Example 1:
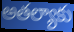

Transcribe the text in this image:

అతల్యాకు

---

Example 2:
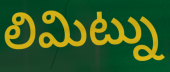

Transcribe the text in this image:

లిమిట్ను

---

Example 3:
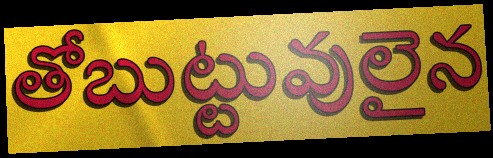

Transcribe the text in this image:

తోబుట్టువులైన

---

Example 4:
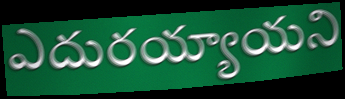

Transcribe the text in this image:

ఎదురయ్యాయని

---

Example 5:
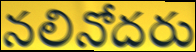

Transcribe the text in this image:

నలినోదరు